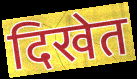
दिखेत